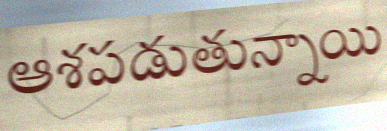
ఆశపడుతున్నాయి